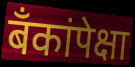
बँकांपेक्षा